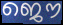
ജൌ